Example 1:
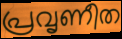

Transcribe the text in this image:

പ്രവൃണീത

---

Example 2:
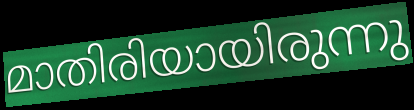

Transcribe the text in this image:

മാതിരിയായിരുന്നു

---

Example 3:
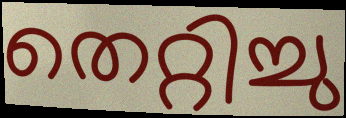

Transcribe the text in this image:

തെറ്റിച്ചു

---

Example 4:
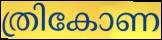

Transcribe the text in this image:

ത്രികോണ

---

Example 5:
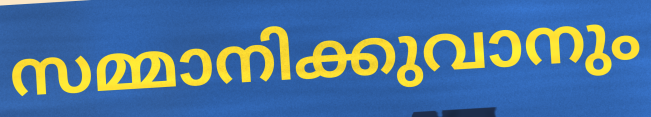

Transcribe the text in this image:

സമ്മാനിക്കുവാനും